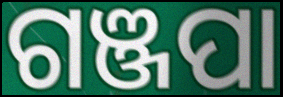
ଗଞ୍ଜପା